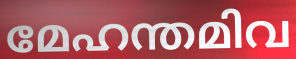
മേഹന്തമിവ